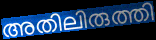
അതിലിരുത്തി